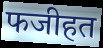
फजीहत